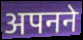
अपनने